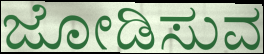
ಜೋಡಿಸುವ